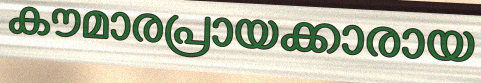
കൗമാരപ്രായക്കാരായ